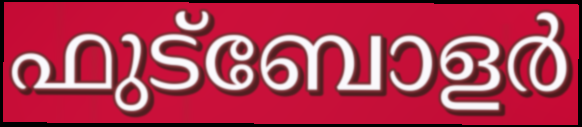
ഫുട്ബോളർ